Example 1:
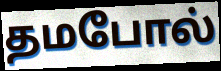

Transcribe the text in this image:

தமபோல்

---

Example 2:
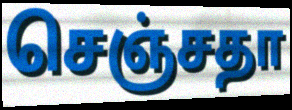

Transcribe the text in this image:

செஞ்சதா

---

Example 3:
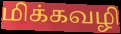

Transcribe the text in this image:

மிக்கவழி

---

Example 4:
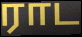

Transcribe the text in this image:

ராட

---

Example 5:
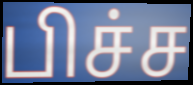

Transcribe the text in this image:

பிச்ச